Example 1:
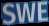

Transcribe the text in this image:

SWE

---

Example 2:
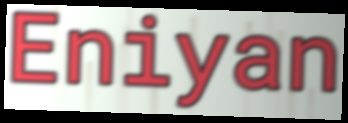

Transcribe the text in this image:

Eniyan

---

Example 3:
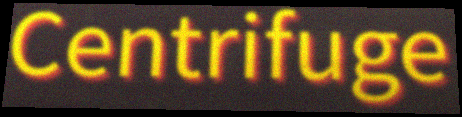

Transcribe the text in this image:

Centrifuge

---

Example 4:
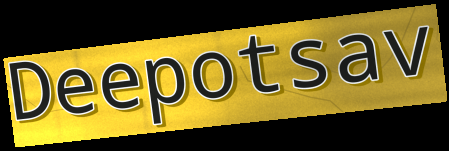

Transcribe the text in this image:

Deepotsav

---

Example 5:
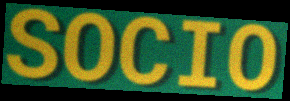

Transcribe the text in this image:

SOCIO